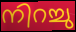
നിറച്ചു